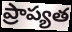
ప్రాప్యత